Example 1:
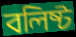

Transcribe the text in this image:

বলিষ্ট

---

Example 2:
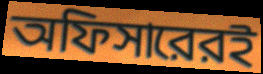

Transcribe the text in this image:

অফিসারেরই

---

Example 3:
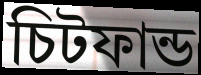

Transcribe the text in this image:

চিটফান্ড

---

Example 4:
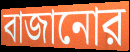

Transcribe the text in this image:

বাজানোর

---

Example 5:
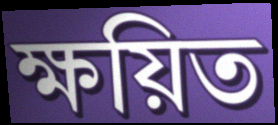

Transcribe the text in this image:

ক্ষয়িত